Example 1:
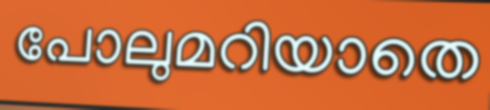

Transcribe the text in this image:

പോലുമറിയാതെ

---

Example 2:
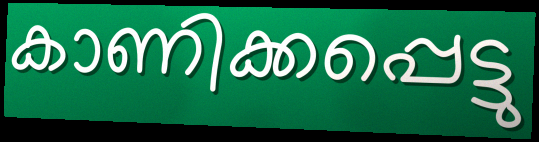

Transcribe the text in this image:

കാണിക്കപ്പെട്ടു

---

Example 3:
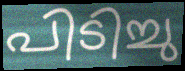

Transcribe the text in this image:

പിടിച്ചു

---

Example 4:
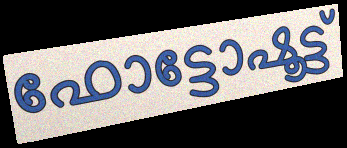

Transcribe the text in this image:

ഫോട്ടോഷൂട്ട്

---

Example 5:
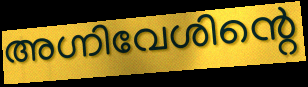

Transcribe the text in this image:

അഗ്നിവേശിന്റെ